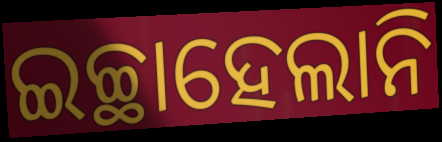
ଇଚ୍ଛାହେଲାନି